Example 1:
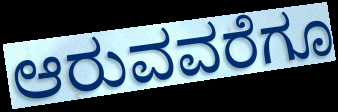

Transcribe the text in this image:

ಆರುವವರೆಗೂ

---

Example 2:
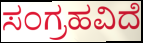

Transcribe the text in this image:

ಸಂಗ್ರಹವಿದೆ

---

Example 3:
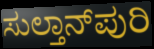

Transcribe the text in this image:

ಸುಲ್ತಾನ್‌ಪುರಿ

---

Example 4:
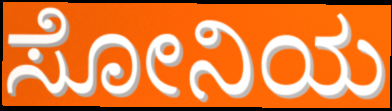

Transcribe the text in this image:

ಸೋನಿಯ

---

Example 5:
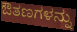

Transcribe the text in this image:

ಔತಣಗಳನ್ನು